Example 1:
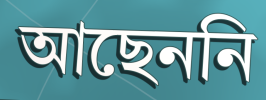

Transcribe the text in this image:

আছেননি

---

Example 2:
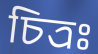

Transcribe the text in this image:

চিত্রঃ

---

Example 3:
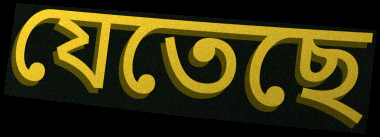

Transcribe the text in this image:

যেতেছে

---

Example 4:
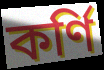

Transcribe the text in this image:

কর্ণি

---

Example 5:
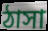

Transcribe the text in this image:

ঠাসা